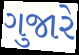
ગુજારે